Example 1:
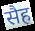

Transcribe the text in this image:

सैह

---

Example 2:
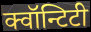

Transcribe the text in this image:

क्वॉन्टिटी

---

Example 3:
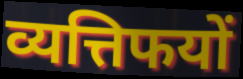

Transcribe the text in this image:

व्यत्तिफयों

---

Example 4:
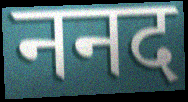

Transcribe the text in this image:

ननद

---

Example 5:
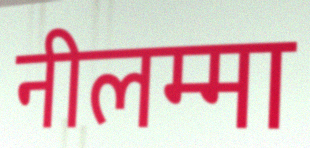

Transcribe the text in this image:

नीलम्मा